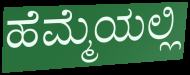
ಹೆಮ್ಮೆಯಲ್ಲಿ